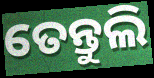
ତେନ୍ତୁଲି